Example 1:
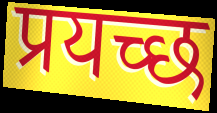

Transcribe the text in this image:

प्रयच्छ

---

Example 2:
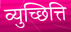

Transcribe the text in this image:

व्युच्छित्ति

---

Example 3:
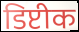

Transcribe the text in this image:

डिप्टीक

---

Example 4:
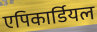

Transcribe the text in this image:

एपिकार्डियल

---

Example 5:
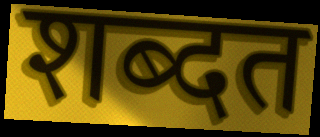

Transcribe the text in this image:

शब्दत